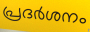
പ്രദർശനം